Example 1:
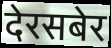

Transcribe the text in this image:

देरसबेर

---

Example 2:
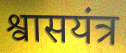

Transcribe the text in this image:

श्वासयंत्र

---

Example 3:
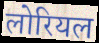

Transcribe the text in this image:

लोरियल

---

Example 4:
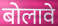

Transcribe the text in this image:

बोलावे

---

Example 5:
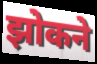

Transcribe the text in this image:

झोकने